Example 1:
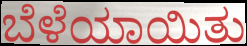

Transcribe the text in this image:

ಬೆಳೆಯಾಯಿತು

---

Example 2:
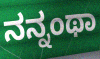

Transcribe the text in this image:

ನನ್ನಂಥಾ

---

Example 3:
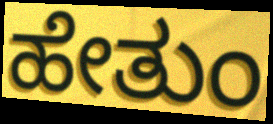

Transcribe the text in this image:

ಹೇತುಂ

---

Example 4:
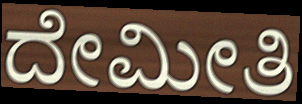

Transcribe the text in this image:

ದೇಮೀತಿ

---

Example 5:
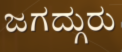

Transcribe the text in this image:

ಜಗದ್ಗುರು